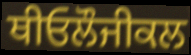
ਥੀਓਲੌਜੀਕਲ